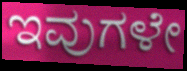
ಇವುಗಳೇ